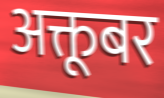
अक्तूबर